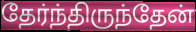
தேர்ந்திருந்தேன்